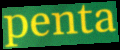
penta